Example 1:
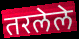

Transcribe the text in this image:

तरलेले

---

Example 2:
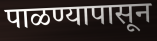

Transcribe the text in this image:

पाळण्यापासून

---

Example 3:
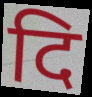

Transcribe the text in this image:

दि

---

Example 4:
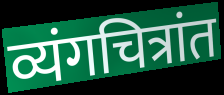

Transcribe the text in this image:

व्यंगचित्रांत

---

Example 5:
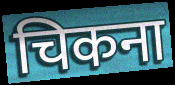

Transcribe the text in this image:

चिकना